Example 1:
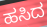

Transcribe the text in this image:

ಹಸಿದ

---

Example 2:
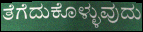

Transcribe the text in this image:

ತೆಗೆದುಕೊಳ್ಳುವುದು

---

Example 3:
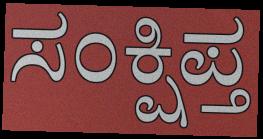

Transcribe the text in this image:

ಸಂಕ್ಷಿಪ್ತ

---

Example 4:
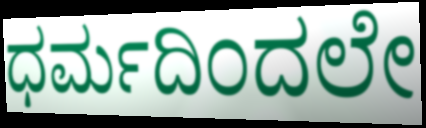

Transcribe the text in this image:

ಧರ್ಮದಿಂದಲೇ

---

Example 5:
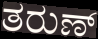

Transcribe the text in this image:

ತರುಣ್